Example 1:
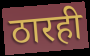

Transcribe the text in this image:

ठारही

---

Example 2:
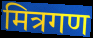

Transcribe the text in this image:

मित्रगण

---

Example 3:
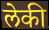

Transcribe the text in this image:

लेकी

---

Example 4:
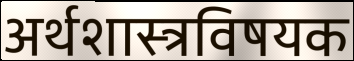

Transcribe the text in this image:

अर्थशास्त्रविषयक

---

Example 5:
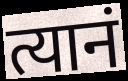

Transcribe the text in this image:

त्यानं